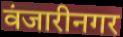
वंजारीनगर